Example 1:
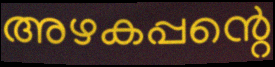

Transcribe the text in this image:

അഴകപ്പന്റെ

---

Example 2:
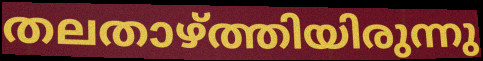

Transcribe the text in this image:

തലതാഴ്ത്തിയിരുന്നു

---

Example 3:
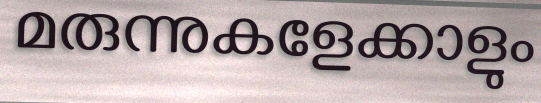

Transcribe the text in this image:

മരുന്നുകളേക്കാളും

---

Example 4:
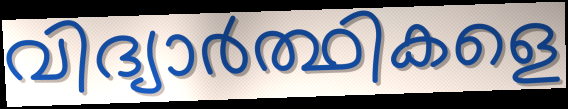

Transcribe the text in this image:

വിദ്യാർത്ഥികളെ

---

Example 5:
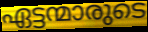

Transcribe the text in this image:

ഏട്ടന്മാരുടെ